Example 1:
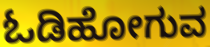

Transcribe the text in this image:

ಓಡಿಹೋಗುವ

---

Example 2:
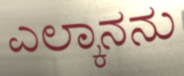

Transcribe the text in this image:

ಎಲ್ಕಾನನು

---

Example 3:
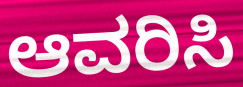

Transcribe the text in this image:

ಆವರಿಸಿ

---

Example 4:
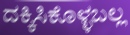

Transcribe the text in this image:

ದಕ್ಕಿಸಿಕೊಳ್ಳಬಲ್ಲ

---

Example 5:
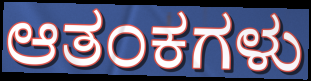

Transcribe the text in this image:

ಆತಂಕಗಳು